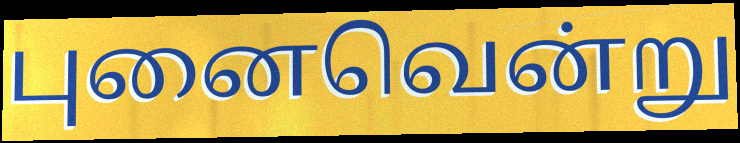
புனைவென்று